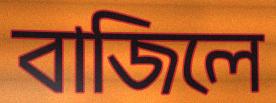
বাজিলে